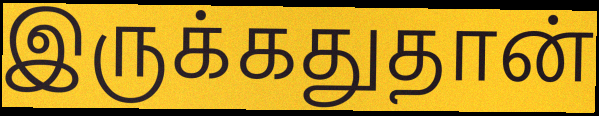
இருக்கதுதான்